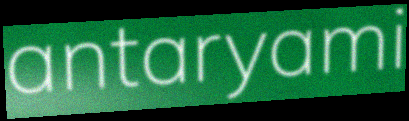
antaryami